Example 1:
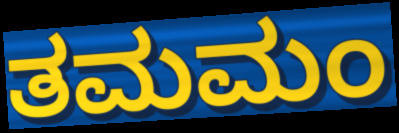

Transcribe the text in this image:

ತಮಮಂ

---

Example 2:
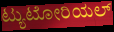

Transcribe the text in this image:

ಟ್ಯುಟೋರಿಯಲ್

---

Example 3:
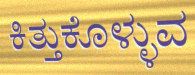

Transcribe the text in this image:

ಕಿತ್ತುಕೊಳ್ಳುವ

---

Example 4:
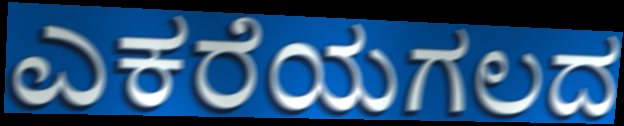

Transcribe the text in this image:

ಎಕರೆಯಗಲದ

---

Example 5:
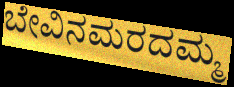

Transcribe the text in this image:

ಬೇವಿನಮರದಮ್ಮ